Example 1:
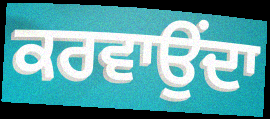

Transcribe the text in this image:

ਕਰਵਾਉਂਦਾ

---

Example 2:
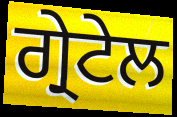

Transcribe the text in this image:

ਗ੍ਰੇਟੇਲ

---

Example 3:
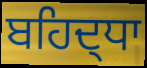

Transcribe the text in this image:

ਬਹਿਦ੍ਧਾ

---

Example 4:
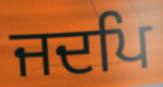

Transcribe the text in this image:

ਜਦਪਿ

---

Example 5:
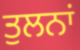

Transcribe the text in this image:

ਤੁਲਨਾਂ